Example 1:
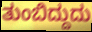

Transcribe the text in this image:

ತುಂಬಿದ್ದುದು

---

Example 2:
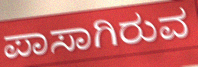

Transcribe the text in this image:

ಪಾಸಾಗಿರುವ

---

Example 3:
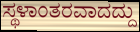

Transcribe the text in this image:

ಸ್ಥಳಾಂತರವಾದದ್ದು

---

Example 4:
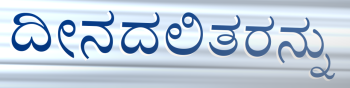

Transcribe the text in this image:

ದೀನದಲಿತರನ್ನು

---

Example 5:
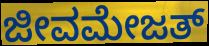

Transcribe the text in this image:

ಜೀವಮೇಜತ್